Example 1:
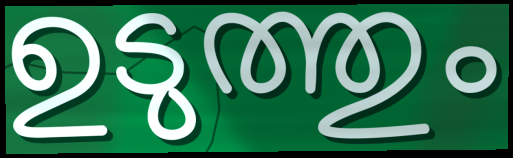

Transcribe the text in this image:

ഉടുത്തും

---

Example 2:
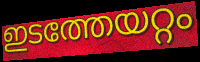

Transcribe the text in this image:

ഇടത്തേയറ്റം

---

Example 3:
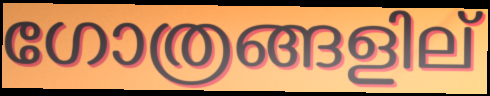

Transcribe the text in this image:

ഗോത്രങ്ങളില്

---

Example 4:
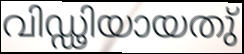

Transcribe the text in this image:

വിഡ്ഢിയായതു്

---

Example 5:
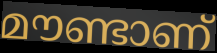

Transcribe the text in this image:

മൗണ്ടാണ്